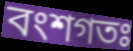
বংশগতঃ